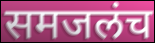
समजलंच